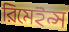
রিমেইন্স